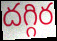
దగ్గిర